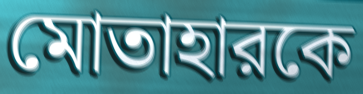
মোতাহারকে